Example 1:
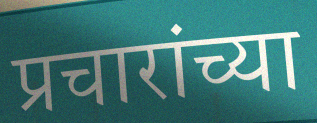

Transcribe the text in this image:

प्रचारांच्या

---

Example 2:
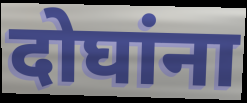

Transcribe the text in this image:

दोघांना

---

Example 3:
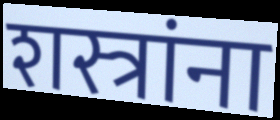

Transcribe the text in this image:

शस्त्रांना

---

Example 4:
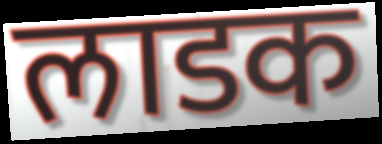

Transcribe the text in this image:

लाडक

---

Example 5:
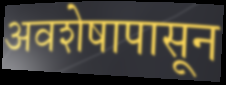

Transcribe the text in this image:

अवशेषापासून